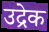
उद्रेक